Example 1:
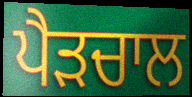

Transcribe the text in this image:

ਪੈੜਚਾਲ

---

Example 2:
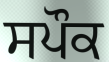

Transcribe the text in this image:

ਸਪੌਕ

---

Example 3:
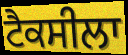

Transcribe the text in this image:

ਟੈਕਸੀਲਾ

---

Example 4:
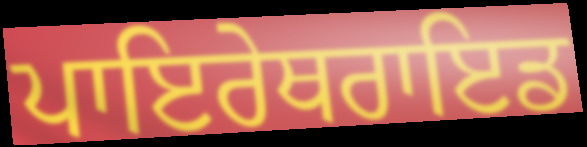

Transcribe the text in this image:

ਪਾਇਰੇਥਰਾਇਡ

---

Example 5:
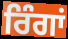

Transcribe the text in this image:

ਰਿੰਗਾਂ